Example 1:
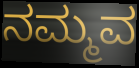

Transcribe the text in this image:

ನಮ್ಮವ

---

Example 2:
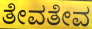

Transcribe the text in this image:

ತೇವತೇವ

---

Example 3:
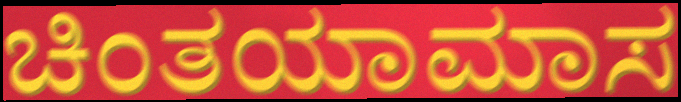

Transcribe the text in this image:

ಚಿಂತಯಾಮಾಸ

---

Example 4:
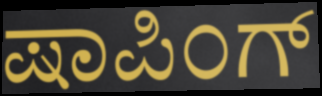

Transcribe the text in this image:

ಷಾಪಿಂಗ್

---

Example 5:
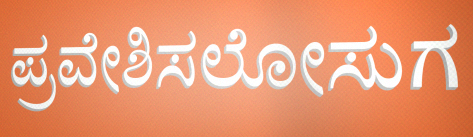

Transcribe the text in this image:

ಪ್ರವೇಶಿಸಲೋಸುಗ